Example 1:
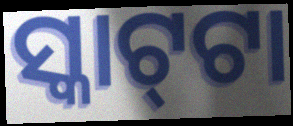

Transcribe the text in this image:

ସ୍କାଟ୍‌ଟା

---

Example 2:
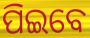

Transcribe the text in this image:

ପିଇବେ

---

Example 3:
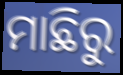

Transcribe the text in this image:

ମାଛିରୁ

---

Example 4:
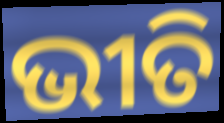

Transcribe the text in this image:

ଭୀତି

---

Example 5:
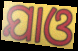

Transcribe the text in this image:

ଯାଓ